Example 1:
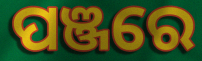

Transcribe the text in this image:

ପଞ୍ଜରେ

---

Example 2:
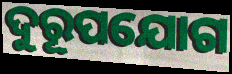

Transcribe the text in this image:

ଦୁରୂପଯୋଗ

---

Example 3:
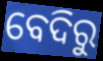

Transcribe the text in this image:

ବେଦିରୁ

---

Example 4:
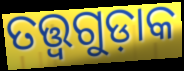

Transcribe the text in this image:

ତତ୍ତ୍ୱଗୁଡ଼ାକ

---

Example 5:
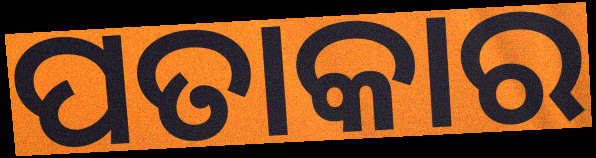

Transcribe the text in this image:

ପତାକାର